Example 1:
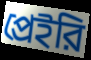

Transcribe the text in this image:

প্রেইরি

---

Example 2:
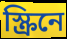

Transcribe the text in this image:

স্ক্রিনে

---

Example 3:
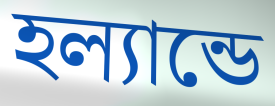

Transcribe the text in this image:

হল্যান্ডে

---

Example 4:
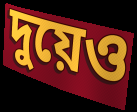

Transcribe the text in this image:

দুয়েও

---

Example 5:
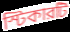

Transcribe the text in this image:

স্টিকারটি